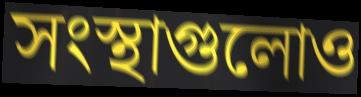
সংস্থাগুলোও